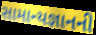
સામાન્યજ્ઞાનની